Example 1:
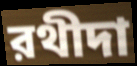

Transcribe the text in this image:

রথীদা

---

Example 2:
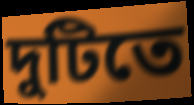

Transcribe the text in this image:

দুটিতে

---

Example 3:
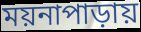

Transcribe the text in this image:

ময়নাপাড়ায়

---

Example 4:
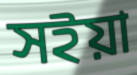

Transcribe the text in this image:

সইয়া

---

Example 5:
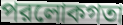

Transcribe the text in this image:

পরলোকগতা